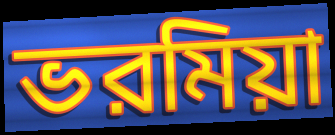
ভরমিয়া